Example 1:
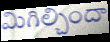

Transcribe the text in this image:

మిగిల్చిందా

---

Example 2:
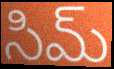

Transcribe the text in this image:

సిమ్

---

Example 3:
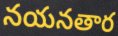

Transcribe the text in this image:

నయనతార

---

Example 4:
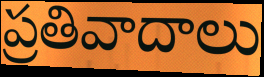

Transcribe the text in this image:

ప్రతివాదాలు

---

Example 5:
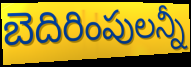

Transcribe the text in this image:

బెదిరింపులన్నీ